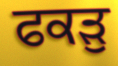
ਫਕੜੁ